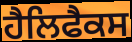
ਹੈਲਿਫੈਕਸ